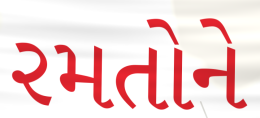
રમતોને